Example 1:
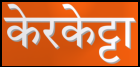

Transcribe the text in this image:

केरकेट्टा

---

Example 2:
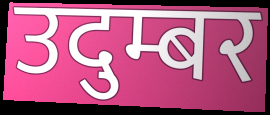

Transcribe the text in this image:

उदुम्बर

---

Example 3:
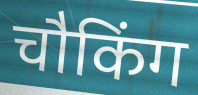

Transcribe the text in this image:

चौकिंग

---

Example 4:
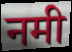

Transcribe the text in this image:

नमी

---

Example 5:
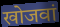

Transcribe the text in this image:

खोजवां